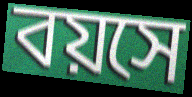
বয়সে